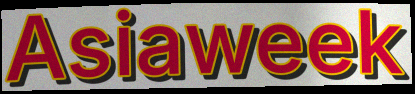
Asiaweek